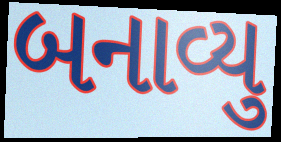
બનાવ્યુ